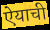
ऐयाची